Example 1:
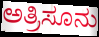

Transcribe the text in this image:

ಅತ್ರಿಸೂನು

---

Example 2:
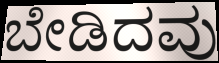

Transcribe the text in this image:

ಬೇಡಿದವು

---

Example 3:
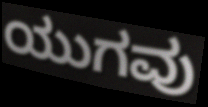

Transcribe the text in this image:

ಯುಗವು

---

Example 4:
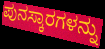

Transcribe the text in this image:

ಪುನಸ್ಕಾರಗಳನ್ನು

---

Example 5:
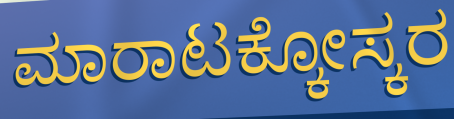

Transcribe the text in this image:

ಮಾರಾಟಕ್ಕೋಸ್ಕರ